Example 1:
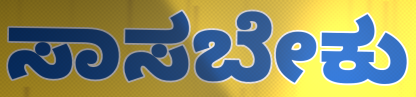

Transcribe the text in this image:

ಸಾಸಬೇಕು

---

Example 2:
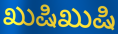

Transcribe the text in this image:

ಖುಷಿಖುಷಿ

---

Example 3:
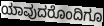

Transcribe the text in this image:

ಯಾವುದರೊಂದಿಗೂ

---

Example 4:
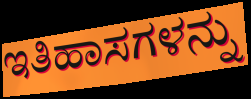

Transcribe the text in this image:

ಇತಿಹಾಸಗಳನ್ನು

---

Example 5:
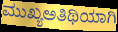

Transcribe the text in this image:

ಮುಖ್ಯಅತಿಥಿಯಾಗಿ